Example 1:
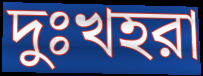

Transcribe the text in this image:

দুঃখহরা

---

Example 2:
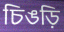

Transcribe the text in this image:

চিঙড়ি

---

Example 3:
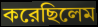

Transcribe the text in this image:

করেছিলেম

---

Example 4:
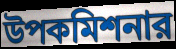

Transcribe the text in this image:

উপকমিশনার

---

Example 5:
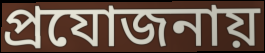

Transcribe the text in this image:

প্রযোজনায়